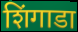
शिंगाडा